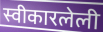
स्वीकारलेली